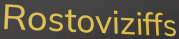
Rostoviziffs